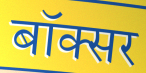
बॉक्सर